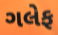
ગલેફ